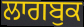
ਲਾਗਬੁਕ